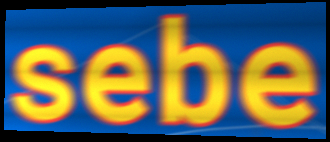
sebe